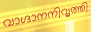
വാഗ്ദാനനിവൃത്തി